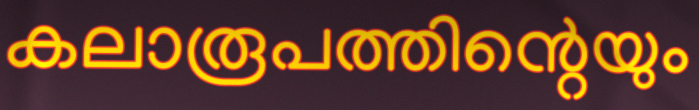
കലാരൂപത്തിന്റെയും